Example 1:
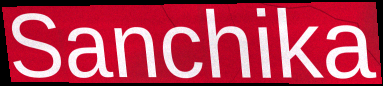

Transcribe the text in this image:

Sanchika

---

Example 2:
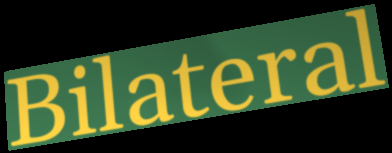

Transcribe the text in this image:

Bilateral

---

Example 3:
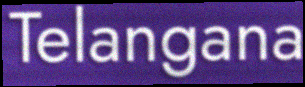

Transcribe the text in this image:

Telangana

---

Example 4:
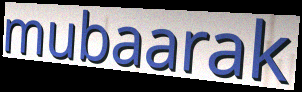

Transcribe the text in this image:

mubaarak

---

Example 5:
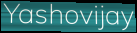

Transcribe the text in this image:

Yashovijay